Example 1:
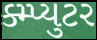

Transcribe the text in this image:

ક્મ્પ્યુટર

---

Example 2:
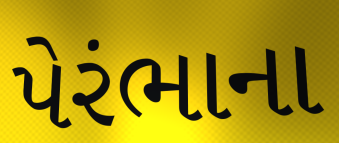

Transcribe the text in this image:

પેરંભાના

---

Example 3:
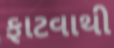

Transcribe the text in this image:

ફાટવાથી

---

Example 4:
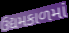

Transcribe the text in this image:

ઉદ્યમકાળમાં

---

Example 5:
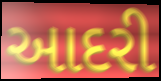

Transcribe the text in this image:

આદરી